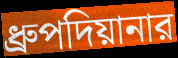
ধ্রুপদিয়ানার